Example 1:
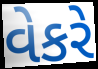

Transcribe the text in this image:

વેકરે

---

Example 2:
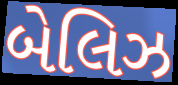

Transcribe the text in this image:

બેલિઝ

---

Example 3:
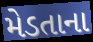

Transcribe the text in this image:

મેડતાના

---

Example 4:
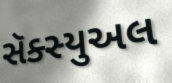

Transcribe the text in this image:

સૅક્સ્યુઅલ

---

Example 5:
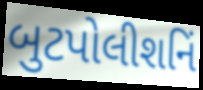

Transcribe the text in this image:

બુટપોલીશનિં